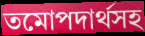
তমোপদার্থসহ